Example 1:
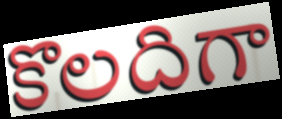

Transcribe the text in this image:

కొలదిగా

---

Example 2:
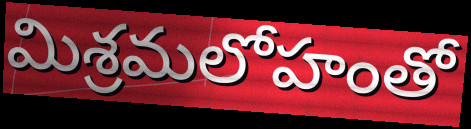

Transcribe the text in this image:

మిశ్రమలోహంతో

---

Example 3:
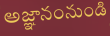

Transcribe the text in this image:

అజ్ఞానంనుండి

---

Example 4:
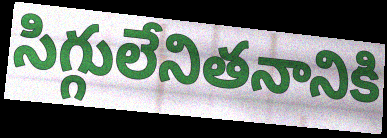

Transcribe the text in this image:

సిగ్గులేనితనానికి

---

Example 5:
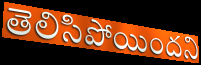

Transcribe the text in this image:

తెలిసిపోయిందని